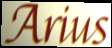
Arius